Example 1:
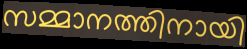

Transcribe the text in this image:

സമ്മാനത്തിനായി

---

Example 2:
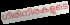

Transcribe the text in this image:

ഗിരിനിരകളുടെ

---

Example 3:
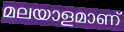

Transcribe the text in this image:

മലയാളമാണ്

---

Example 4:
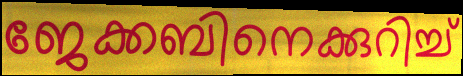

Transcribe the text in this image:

ജേക്കബിനെക്കുറിച്ച്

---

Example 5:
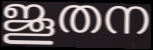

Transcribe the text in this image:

ജൂതന